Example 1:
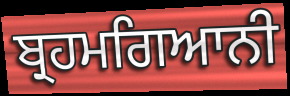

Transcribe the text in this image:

ਬ੍ਰਹਮਗਿਆਨੀ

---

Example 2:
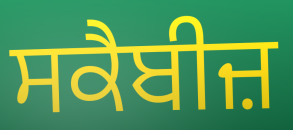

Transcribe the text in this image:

ਸਕੈਬੀਜ਼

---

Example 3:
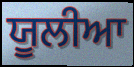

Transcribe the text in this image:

ਯੂਲੀਆ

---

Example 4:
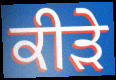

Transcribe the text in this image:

ਕੀੜੇ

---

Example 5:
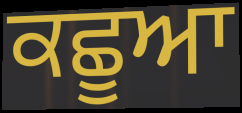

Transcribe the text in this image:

ਕਛੂਆ